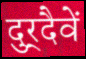
दुर्दैवें